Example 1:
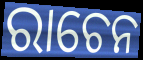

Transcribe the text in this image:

ରାଚେନ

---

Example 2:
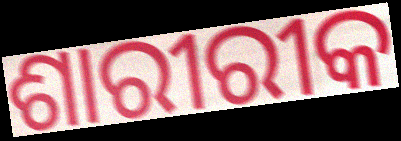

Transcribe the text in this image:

ଶାରୀରୀକ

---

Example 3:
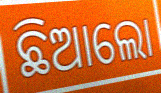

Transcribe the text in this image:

ଛିଆଲୋ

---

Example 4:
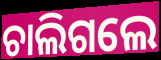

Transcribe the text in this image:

ଚାଲିଗଲେ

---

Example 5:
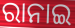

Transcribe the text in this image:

ରାନାଇ